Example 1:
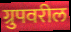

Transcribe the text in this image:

ग्रुपवरील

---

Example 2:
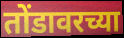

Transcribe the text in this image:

तोंडावरच्या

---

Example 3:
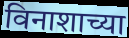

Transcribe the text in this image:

विनाशाच्या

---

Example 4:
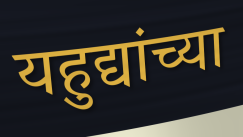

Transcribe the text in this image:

यहुद्यांच्या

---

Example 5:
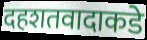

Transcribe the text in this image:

दहशतवादाकडे